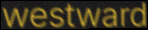
westward